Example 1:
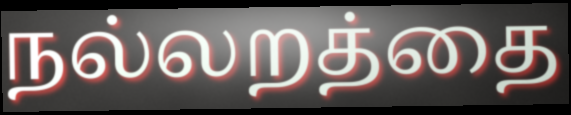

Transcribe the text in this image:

நல்லறத்தை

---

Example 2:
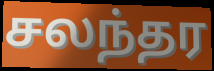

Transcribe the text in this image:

சலந்தர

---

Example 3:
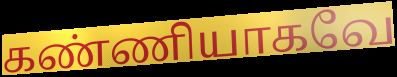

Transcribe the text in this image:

கண்ணியாகவே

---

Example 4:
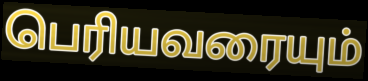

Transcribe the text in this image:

பெரியவரையும்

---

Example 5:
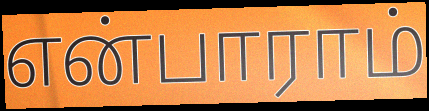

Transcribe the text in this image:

என்பாராம்